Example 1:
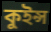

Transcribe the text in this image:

কুইন্স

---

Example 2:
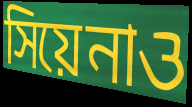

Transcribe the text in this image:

সিয়েনাও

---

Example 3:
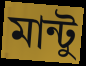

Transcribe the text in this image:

মান্টু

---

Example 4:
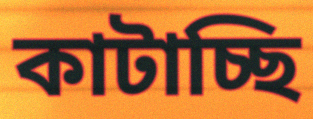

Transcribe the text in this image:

কাটাচ্ছি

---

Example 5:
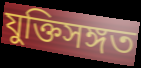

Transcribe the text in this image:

যুক্তিসঙ্গত